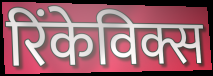
रिंकेविक्स